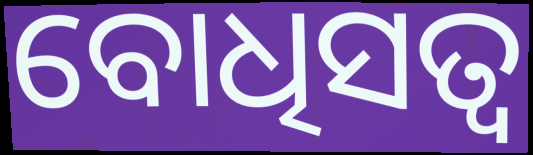
ବୋଧିସତ୍ବ